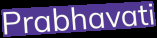
Prabhavati